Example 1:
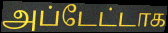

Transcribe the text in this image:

அப்டேட்டாக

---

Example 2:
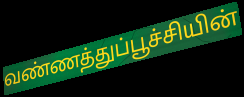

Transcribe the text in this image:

வண்ணத்துப்பூச்சியின்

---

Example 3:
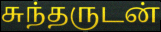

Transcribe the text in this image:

சுந்தருடன்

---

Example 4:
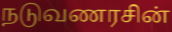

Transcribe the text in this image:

நடுவணரசின்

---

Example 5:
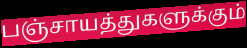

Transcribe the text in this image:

பஞ்சாயத்துகளுக்கும்